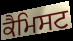
ਕੈਮਿਸਟ